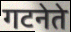
गटनेते